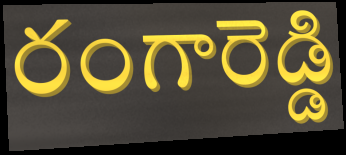
రంగారెడ్డి